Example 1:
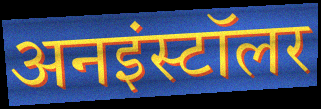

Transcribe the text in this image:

अनइंस्टॉलर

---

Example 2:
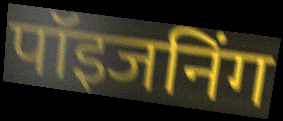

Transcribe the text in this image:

पॉइजनिंग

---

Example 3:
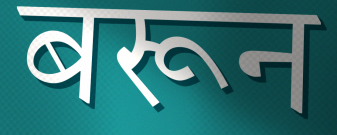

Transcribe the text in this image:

बरून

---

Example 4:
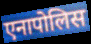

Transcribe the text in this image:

एनापोलिस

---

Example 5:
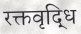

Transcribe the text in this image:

रक्तवृद्धि